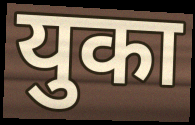
युका